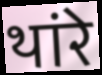
थांरे